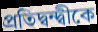
প্রতিদ্বন্দ্বীকে